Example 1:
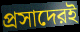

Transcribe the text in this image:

প্রসাদেরই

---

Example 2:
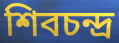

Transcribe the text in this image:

শিবচন্দ্র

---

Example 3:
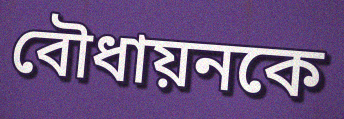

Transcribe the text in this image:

বৌধায়নকে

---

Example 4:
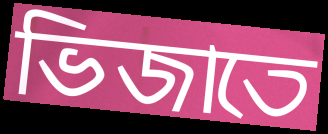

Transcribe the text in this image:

ভিজাতে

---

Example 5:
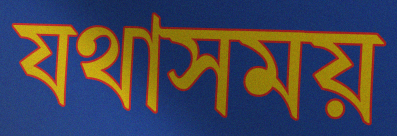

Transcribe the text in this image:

যথাসময়